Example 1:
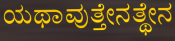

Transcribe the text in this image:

ಯಥಾವುತ್ತೇನತ್ಥೇನ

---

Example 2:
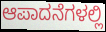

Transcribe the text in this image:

ಆಪಾದನೆಗಳಲ್ಲಿ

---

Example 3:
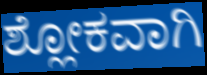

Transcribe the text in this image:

ಶ್ಲೋಕವಾಗಿ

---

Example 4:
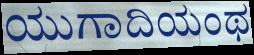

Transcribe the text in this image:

ಯುಗಾದಿಯಂಥ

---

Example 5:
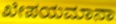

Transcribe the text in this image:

ಖೇಪಯಮಾನಾ